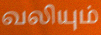
வலியும்